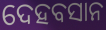
ଦେହବସାନ